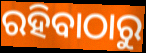
ରହିବାଠାରୁ